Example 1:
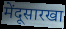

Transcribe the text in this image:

मेंदूसारखा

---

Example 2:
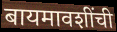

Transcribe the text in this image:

बायमावशींची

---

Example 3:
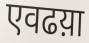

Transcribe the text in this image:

एवढय़ा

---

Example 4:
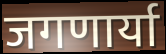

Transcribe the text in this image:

जगणार्या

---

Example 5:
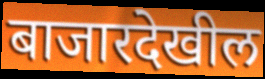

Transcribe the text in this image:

बाजारदेखील